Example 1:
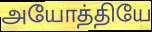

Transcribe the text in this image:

அயோத்தியே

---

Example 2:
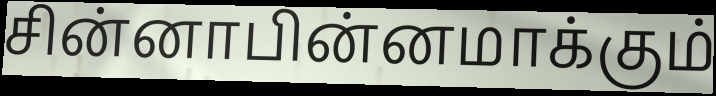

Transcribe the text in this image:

சின்னாபின்னமாக்கும்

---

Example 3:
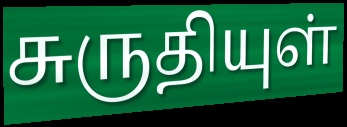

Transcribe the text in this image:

சுருதியுள்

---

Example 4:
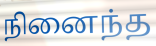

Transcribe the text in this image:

நினைந்த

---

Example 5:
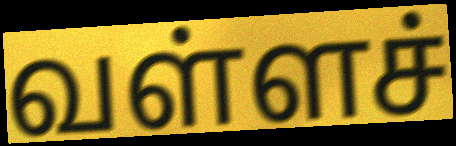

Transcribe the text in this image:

வள்ளச்